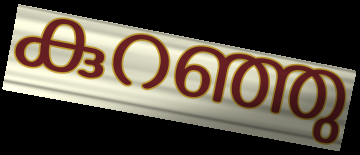
കുറഞ്ഞു